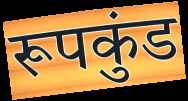
रूपकुंड